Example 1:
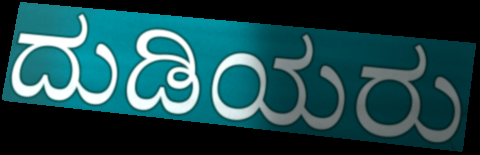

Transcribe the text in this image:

ದುಡಿಯರು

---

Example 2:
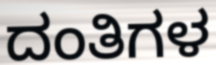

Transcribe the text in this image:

ದಂತಿಗಳ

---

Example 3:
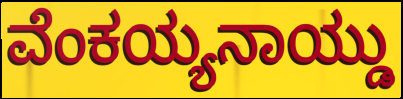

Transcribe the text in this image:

ವೆಂಕಯ್ಯನಾಯ್ಡು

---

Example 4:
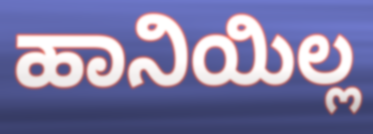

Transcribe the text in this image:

ಹಾನಿಯಿಲ್ಲ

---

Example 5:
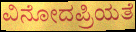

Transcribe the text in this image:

ವಿನೋದಪ್ರಿಯತೆ